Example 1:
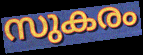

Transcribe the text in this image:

സുകരം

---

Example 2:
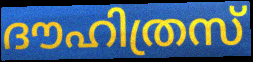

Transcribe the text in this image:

ദൗഹിത്രസ്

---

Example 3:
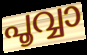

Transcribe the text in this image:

പൂവ്വാ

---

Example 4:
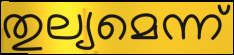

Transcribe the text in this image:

തുല്യമെന്ന്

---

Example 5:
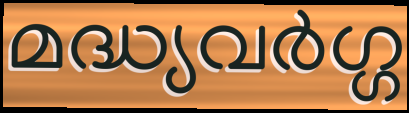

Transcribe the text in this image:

മദ്ധ്യവർഗ്ഗ